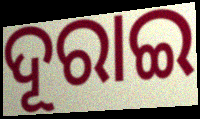
ଦୂରାଇ